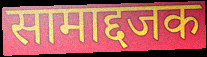
सामाद्दजक